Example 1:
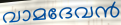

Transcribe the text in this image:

വാമദേവൻ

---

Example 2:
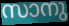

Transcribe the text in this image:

സാനു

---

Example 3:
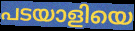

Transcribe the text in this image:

പടയാളിയെ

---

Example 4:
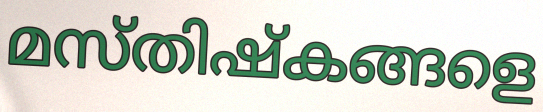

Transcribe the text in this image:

മസ്തിഷ്കങ്ങളെ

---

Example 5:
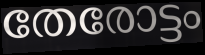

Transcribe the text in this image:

തേരോട്ടം